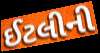
ઈટલીની